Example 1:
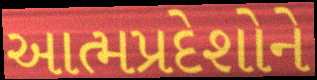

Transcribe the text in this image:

આત્મપ્રદેશોને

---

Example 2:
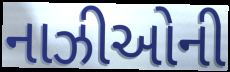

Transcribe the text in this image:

નાઝીઓની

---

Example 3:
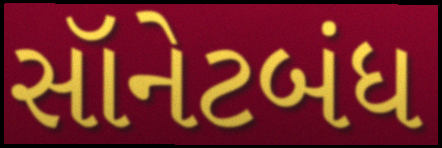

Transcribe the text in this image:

સૉનેટબંધ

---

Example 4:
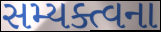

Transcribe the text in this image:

સમ્યક્ત્વના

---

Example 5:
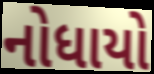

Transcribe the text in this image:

નોધાયો